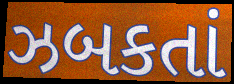
ઝબકતાં